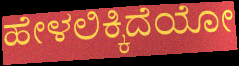
ಹೇಳಲಿಕ್ಕಿದೆಯೋ